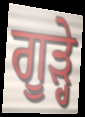
ਗੂੜ੍ਹੇ